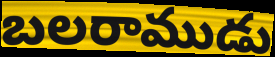
బలరాముడు